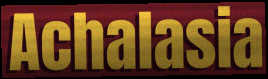
Achalasia